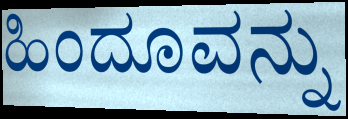
ಹಿಂದೂವನ್ನು